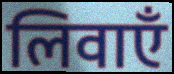
लिवाएँ